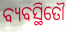
ବ୍ୟବସ୍ଥିତୌ